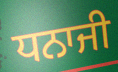
ਧਨਾਜੀ